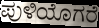
ಪುಳಿಯೊಗರೆ